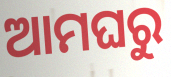
ଆମଘରୁ